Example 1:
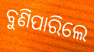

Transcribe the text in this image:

ବୁଣିପାରିଲେ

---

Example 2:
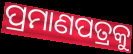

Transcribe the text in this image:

ପ୍ରମାଣପତ୍ରକୁ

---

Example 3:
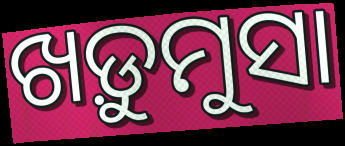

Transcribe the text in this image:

ଖଡ଼ୁମୁସା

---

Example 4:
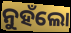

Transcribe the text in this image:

ନୁହଁଲୋ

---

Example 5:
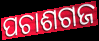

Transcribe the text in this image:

ପଚାଶଗଜ